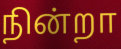
நின்றா